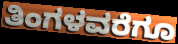
ತಿಂಗಳವರೆಗೂ